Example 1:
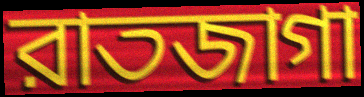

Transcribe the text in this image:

রাতজাগা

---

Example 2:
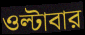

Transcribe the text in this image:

ওল্টাবার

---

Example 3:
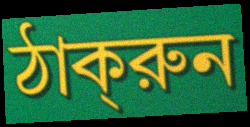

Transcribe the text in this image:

ঠাক্‌রুন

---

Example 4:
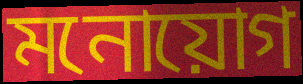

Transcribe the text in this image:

মনোয়োগ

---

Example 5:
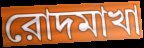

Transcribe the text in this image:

রোদমাখা